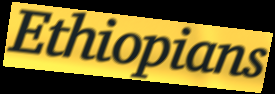
Ethiopians